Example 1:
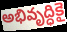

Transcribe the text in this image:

అభివృద్ధికై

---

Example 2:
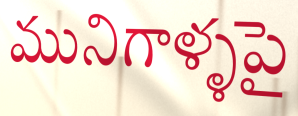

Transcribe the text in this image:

మునిగాళ్ళపై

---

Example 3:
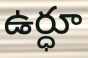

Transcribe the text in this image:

ఉర్ధూ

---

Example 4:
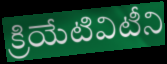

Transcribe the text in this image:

క్రియేటివిటీని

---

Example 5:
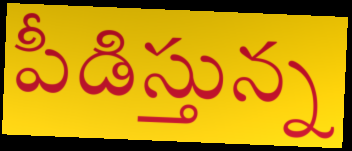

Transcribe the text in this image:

పీడిస్తున్న